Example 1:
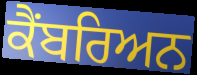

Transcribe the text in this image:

ਕੈਂਬਰਿਅਨ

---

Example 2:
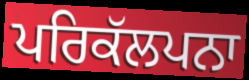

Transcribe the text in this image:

ਪਰਿਕੱਲਪਨਾ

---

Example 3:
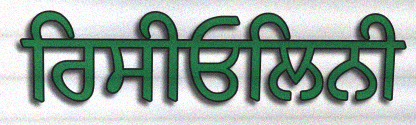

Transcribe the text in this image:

ਰਿਸੀਓਲਿਨੀ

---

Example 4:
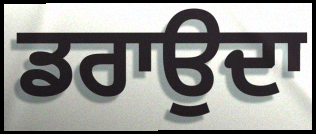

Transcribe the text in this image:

ਡਰਾਉਦਾ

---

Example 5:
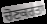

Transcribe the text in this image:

ਚੋਣਕਰਤਾ